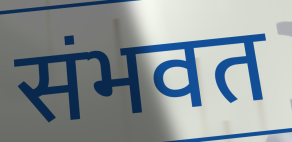
संभवत